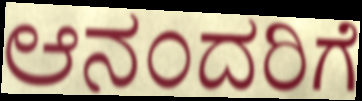
ಆನಂದರಿಗೆ